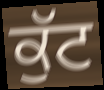
ਕੁੱਟ